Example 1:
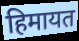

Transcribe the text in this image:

हिमायत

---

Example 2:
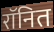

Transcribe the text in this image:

रॉनित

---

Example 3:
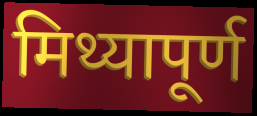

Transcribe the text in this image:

मिथ्यापूर्ण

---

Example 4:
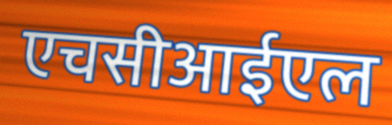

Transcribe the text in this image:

एचसीआईएल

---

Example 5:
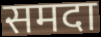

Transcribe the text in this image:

समदा